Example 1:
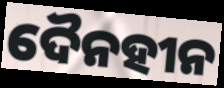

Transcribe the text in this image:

ଦୈନହୀନ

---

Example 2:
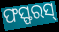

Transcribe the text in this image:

ଫସ୍ଫରସ୍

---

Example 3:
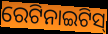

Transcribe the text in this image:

ରେଟିନାଇଟିସ୍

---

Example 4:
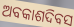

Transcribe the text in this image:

ଅବକାଶଦିବସ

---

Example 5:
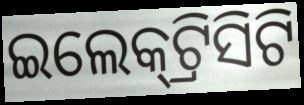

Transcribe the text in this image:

ଇଲେକ୍‌ଟ୍ରିସିଟି